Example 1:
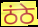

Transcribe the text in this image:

ठंठे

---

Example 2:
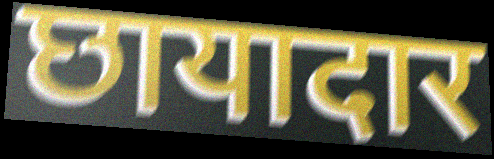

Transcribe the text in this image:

छायादार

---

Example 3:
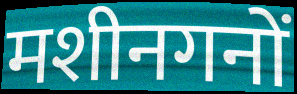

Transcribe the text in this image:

मशीनगनों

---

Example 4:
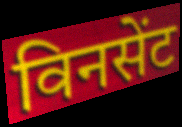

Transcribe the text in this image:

विनसेंट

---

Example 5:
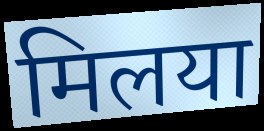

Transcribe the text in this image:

मिलया